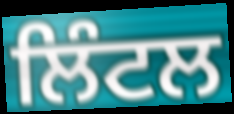
ਲਿੰਟਲ